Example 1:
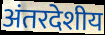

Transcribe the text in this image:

अंतरदेशीय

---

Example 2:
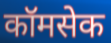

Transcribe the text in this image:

कॉमसेक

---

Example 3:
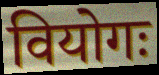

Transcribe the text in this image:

वियोगः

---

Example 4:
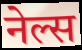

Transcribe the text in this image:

नेल्स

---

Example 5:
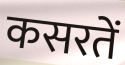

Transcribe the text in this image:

कसरतें